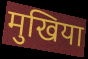
मुखिया